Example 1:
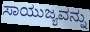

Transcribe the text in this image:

ಸಾಯುಜ್ಯವನ್ನು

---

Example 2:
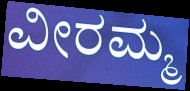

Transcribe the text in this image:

ವೀರಮ್ಮ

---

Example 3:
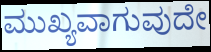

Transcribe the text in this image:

ಮುಖ್ಯವಾಗುವುದೇ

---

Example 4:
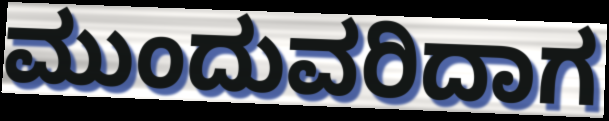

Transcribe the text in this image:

ಮುಂದುವರಿದಾಗ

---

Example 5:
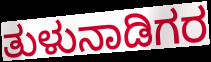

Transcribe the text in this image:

ತುಳುನಾಡಿಗರ